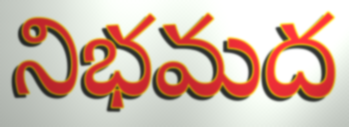
నిభమద